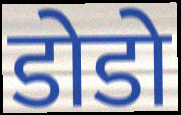
डोडो